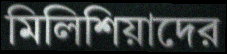
মিলিশিয়াদের